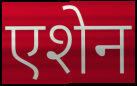
एशेन